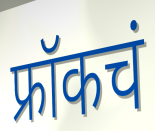
फ्रॉकचं